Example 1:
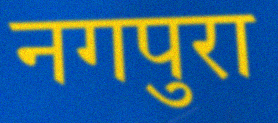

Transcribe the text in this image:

नगपुरा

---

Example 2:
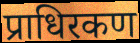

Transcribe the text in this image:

प्राधिरकण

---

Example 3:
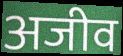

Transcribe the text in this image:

अजीव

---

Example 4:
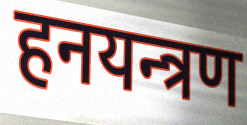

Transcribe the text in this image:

हनयन्त्रण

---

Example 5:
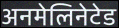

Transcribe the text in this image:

अनमेलिनेटेड